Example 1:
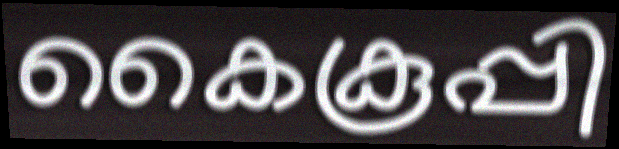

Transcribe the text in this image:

കൈകൂപ്പി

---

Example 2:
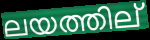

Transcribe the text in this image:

ലയത്തില്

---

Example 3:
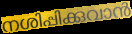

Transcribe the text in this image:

നശിപ്പിക്കുവാൻ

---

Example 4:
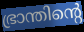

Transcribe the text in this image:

ഭ്രാന്തിന്റെ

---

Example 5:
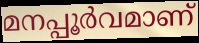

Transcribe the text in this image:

മനപ്പൂർവമാണ്